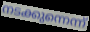
നടക്കുന്നെന്ന്